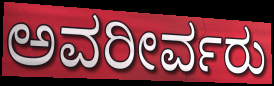
ಅವರೀರ್ವರು